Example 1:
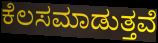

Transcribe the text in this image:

ಕೆಲಸಮಾಡುತ್ತವೆ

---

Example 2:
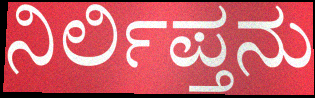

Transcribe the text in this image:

ನಿರ್ಲಿಪ್ತನು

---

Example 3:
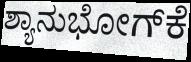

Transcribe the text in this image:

ಶ್ಯಾನುಭೋಗ್‌ಕೆ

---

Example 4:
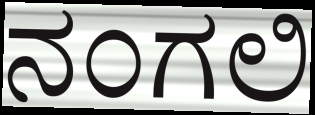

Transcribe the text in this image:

ನಂಗಲಿ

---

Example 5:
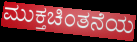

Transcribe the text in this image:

ಮುಕ್ತಚಿಂತನೆಯ